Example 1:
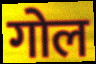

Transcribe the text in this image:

गोल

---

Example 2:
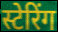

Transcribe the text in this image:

स्टेरिंग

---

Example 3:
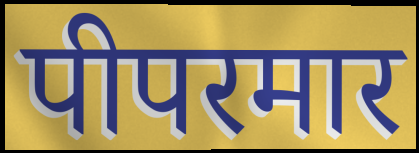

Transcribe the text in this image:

पीपरमार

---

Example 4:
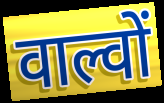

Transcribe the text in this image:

वाल्वों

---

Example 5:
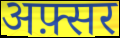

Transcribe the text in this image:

अफ़्सर